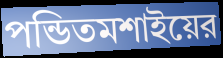
পন্ডিতমশাইয়ের